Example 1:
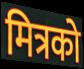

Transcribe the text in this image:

मित्रको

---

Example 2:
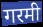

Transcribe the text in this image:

गरमी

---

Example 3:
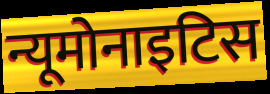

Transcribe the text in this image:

न्यूमोनाइटिस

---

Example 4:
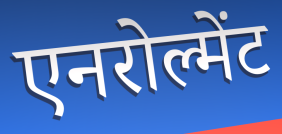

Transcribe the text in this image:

एनरोल्मेंट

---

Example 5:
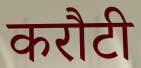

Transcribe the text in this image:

करौटी